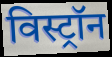
विस्ट्रॉन